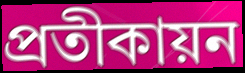
প্রতীকায়ন